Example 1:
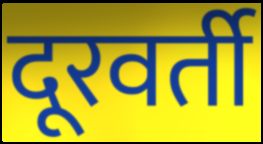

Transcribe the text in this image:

दूरवर्ती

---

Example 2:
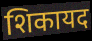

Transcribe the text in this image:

शिकायद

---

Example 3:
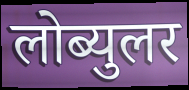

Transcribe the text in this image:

लोब्युलर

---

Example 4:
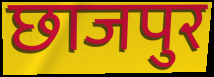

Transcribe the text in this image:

छाजपुर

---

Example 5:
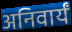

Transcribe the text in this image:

अनिवार्यं